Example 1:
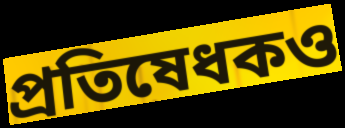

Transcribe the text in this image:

প্রতিষেধকও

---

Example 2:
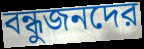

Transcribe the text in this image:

বন্ধুজনদের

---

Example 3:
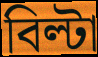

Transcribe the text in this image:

বিল্টা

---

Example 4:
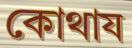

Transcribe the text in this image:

কোথায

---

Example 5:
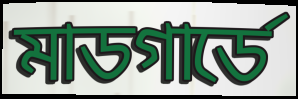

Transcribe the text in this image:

মাডগার্ডে